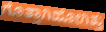
ಗೊತ್ತಾಗಿಹೋಗಿತ್ತು